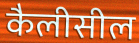
कैलीसील